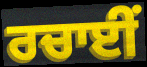
ਰਚਾਈਂ